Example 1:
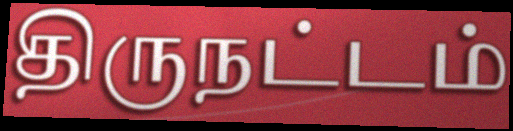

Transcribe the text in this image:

திருநட்டம்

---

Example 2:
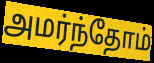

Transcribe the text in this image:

அமர்ந்தோம்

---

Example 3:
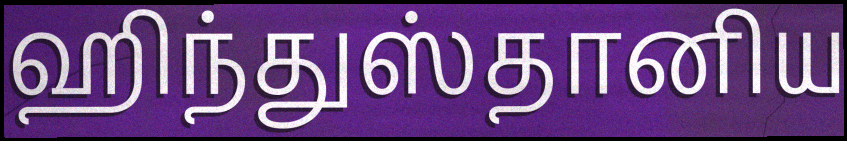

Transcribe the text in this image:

ஹிந்துஸ்தானிய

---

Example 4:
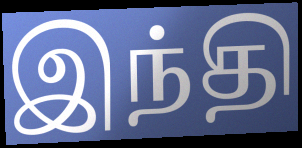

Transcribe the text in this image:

இந்தி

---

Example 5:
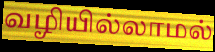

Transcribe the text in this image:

வழியில்லாமல்